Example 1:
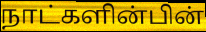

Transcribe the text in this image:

நாட்களின்பின்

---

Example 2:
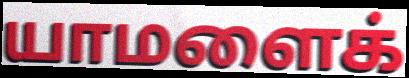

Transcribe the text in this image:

யாமளைக்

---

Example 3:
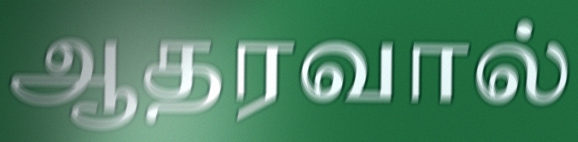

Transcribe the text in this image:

ஆதரவால்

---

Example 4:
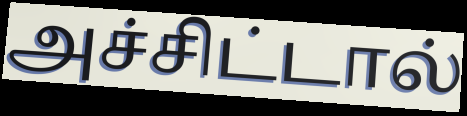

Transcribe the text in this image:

அச்சிட்டால்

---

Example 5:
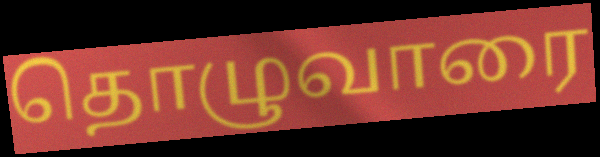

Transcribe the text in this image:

தொழுவாரை